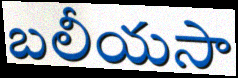
బలీయసా